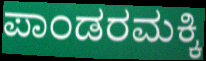
ಪಾಂಡರಮಕ್ಕಿ